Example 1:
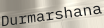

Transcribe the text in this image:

Durmarshana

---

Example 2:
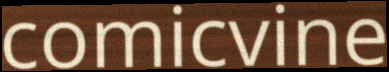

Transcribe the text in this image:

comicvine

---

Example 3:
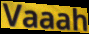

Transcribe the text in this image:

Vaaah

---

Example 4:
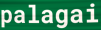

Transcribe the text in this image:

palagai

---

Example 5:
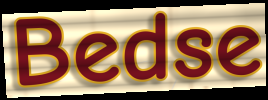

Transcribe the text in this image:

Bedse